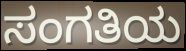
ಸಂಗತಿಯ